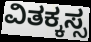
ವಿತಕ್ಕಸ್ಸ